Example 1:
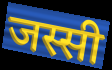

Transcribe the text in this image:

जस्सी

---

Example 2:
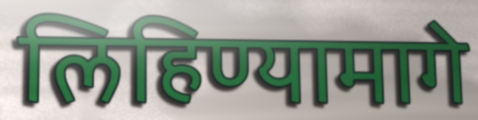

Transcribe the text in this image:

लिहिण्यामागे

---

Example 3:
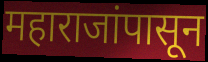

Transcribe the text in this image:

महाराजांपासून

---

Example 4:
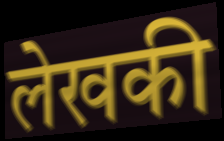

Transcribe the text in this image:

लेखकी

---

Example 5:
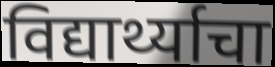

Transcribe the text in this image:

विद्यार्थ्याचा